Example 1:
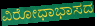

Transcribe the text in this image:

ವಿರೋಧಾಭಾಸದ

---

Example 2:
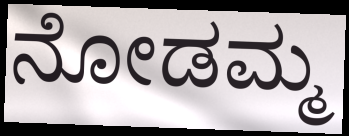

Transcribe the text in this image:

ನೋಡಮ್ಮ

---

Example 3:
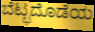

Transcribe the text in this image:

ಬೆಟ್ಟದೊಡೆಯ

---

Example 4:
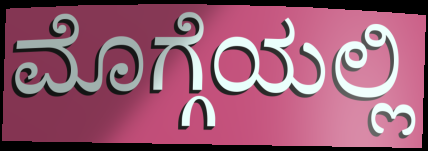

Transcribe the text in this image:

ಮೊಗ್ಗೆಯಲ್ಲಿ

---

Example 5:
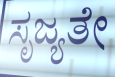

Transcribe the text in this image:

ಸೃಜ್ಯತೇ